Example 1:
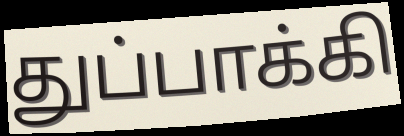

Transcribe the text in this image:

துப்பாக்கி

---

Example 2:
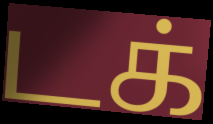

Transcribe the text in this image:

டக்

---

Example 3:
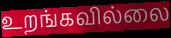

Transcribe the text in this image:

உறங்கவில்லை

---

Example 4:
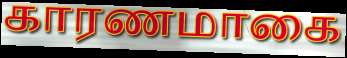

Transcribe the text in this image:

காரணமாகை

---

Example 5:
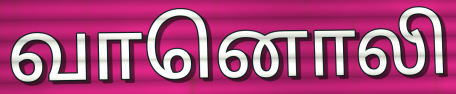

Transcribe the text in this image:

வானொலி